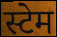
स्टेम